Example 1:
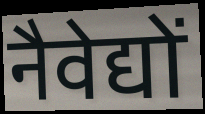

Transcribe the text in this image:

नैवेद्यों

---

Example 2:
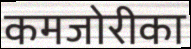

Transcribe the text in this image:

कमजोरीका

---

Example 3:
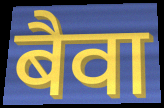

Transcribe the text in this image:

बैवा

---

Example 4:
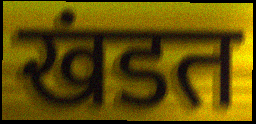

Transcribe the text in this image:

खंडत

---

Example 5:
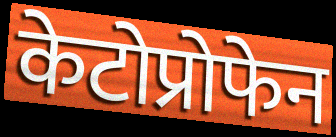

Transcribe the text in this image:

केटोप्रोफेन